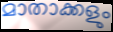
മാതാക്കളും